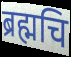
ब्रह्मचि